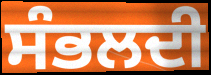
ਸੰਭਲਦੀ